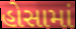
હોસામાં